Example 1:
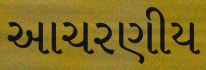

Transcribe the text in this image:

આચરણીય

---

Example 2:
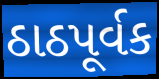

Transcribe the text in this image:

ઠાઠપૂર્વક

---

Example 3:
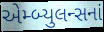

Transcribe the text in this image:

એમ્બ્યુલન્સનાં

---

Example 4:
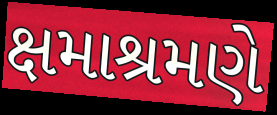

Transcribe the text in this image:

ક્ષમાશ્રમણે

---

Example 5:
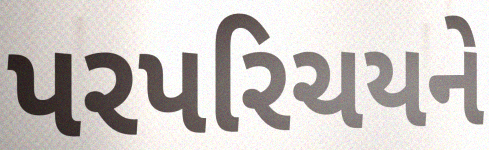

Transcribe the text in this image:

પરપરિચયને